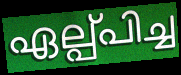
ഏല്പ്പിച്ച